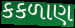
કકળાણ